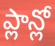
ప్లాన్లో